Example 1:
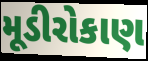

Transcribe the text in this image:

મૂડીરોકાણ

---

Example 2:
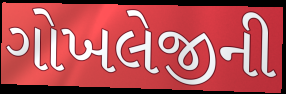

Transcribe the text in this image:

ગોખલેજીની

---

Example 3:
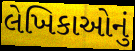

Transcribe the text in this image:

લેખિકાઓનું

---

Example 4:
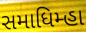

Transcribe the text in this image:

સમાધિમ્હા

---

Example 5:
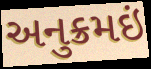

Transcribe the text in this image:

અનુક્રમઇં